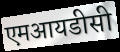
एमआयडीसी